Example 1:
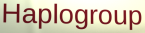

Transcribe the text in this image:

Haplogroup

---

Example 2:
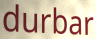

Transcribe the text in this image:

durbar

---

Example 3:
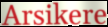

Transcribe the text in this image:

Arsikere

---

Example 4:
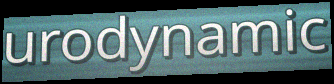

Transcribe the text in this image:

urodynamic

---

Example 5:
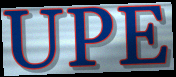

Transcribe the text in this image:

UPE